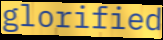
glorified